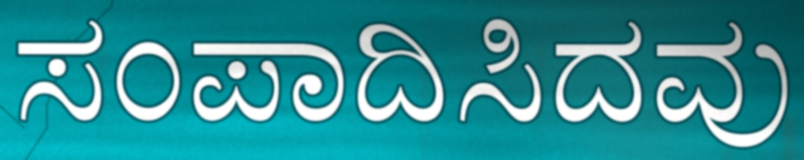
ಸಂಪಾದಿಸಿದವು